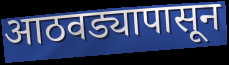
आठवड्यापासून